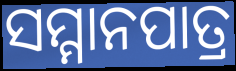
ସମ୍ମାନପାତ୍ର